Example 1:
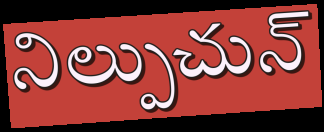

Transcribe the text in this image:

నిల్పుచున్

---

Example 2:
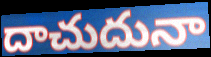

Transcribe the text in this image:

దాచుదునా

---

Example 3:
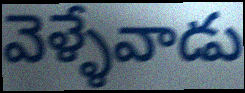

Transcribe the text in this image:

వెళ్ళేవాడు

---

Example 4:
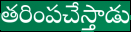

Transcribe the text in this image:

తరింపచేస్తాడు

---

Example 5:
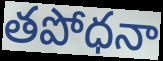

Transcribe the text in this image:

తపోధనా